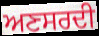
ਅਣਸਰਦੀ